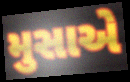
મુસાએ